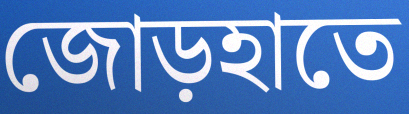
জোড়হাতে